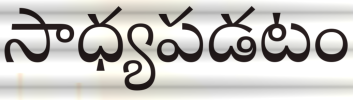
సాధ్యపడటం